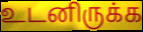
உடனிருக்க